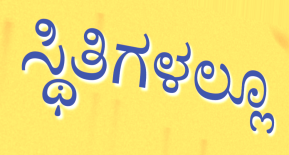
ಸ್ಥಿತಿಗಳಲ್ಲೂ